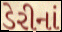
ડેરીનાં